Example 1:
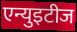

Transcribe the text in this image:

एन्युइटीज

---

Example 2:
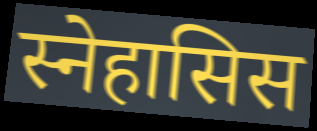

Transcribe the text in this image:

स्नेहासिस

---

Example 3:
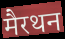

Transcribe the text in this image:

मैरथन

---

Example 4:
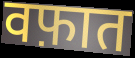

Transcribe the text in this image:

वफ़ात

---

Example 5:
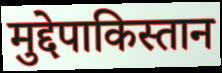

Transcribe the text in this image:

मुद्देपाकिस्तान